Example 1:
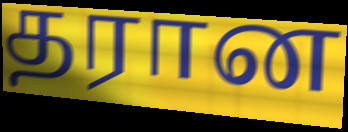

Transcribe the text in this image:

தரான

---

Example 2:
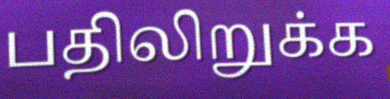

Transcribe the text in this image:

பதிலிறுக்க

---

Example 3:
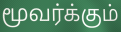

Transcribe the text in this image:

மூவர்க்கும்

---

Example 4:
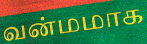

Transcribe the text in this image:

வன்மமாக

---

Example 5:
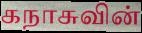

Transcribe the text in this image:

கநாசுவின்